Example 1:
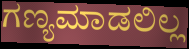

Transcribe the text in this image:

ಗಣ್ಯಮಾಡಲಿಲ್ಲ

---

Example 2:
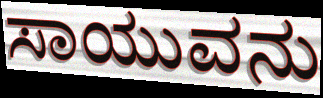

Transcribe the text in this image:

ಸಾಯುವನು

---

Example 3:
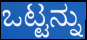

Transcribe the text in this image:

ಒಟ್ಟನ್ನು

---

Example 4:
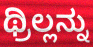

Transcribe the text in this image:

ಥ್ರಿಲ್ಲನ್ನು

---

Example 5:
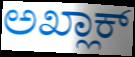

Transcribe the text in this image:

ಅಖ್ಲಾಕ್